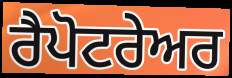
ਰੈਪੋਟਰੇਅਰ